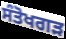
ਸੰਤੋਖਗੜ